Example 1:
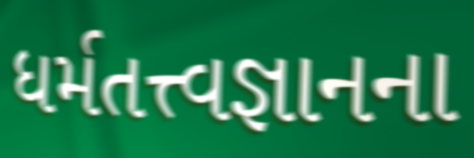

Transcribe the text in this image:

ધર્મતત્ત્વજ્ઞાનના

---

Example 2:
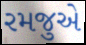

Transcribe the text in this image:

રમજુએ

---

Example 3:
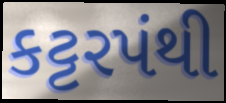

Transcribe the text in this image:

કટ્ટરપંથી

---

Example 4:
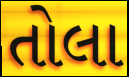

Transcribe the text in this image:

તોલા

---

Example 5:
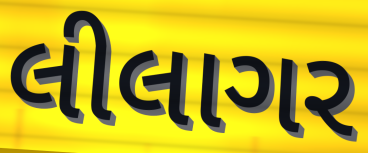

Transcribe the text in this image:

લીલાગર